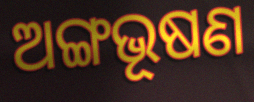
ଅଙ୍ଗଭୂଷଣ